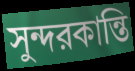
সুন্দরকান্তি